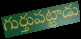
గుర్తుపట్టాడు